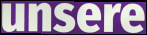
unsere